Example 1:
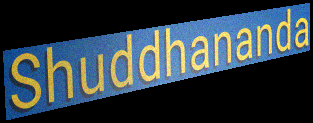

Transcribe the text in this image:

Shuddhananda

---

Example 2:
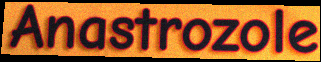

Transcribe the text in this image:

Anastrozole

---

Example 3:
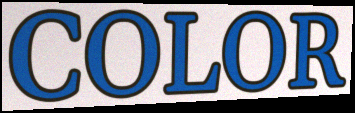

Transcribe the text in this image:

COLOR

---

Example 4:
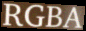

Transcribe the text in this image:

RGBA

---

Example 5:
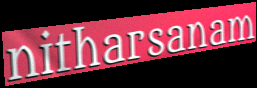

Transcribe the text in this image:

nitharsanam